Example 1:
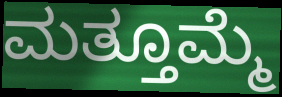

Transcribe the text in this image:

ಮತ್ತೂಮ್ಮೆ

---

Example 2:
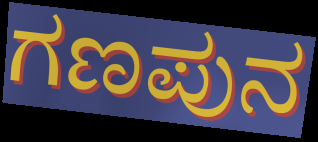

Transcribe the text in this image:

ಗಣಪುನ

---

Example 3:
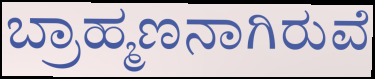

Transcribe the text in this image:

ಬ್ರಾಹ್ಮಣನಾಗಿರುವೆ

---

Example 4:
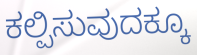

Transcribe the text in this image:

ಕಲ್ಪಿಸುವುದಕ್ಕೂ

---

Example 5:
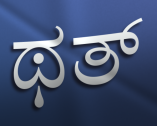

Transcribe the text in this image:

ಥತ್